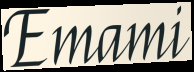
Emami